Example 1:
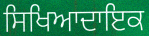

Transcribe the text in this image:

ਸਿਖਿਆਦਾਇਕ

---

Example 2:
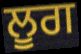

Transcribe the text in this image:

ਲੂਗ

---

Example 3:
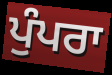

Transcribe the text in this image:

ਪੁੰਪਰਾ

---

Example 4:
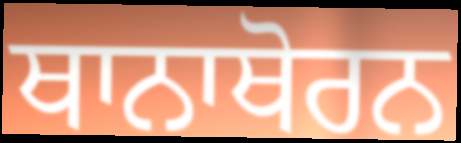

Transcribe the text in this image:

ਥਾਨਾਥੋਰਨ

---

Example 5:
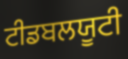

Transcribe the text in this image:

ਟੀਡਬਲਯੂਟੀ